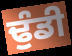
ਢੁੰਡੀ